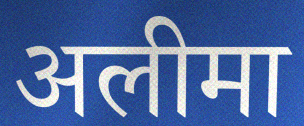
अलीमा